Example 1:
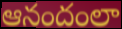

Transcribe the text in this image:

ఆనందంలా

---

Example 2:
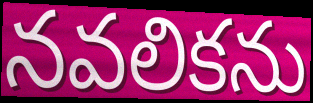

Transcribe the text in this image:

నవలికను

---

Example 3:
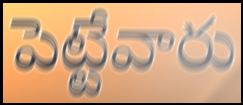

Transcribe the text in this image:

పెట్టేవారు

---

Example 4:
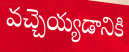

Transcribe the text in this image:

వచ్చెయ్యడానికి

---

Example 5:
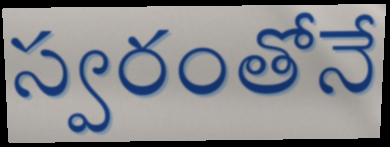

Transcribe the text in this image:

స్వరంతోనే